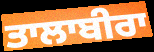
ਤਾਲਾਬੀਰਾ